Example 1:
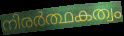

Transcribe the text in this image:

നിരർത്ഥകത്വം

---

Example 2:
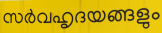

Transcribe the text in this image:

സർവഹൃദയങ്ങളും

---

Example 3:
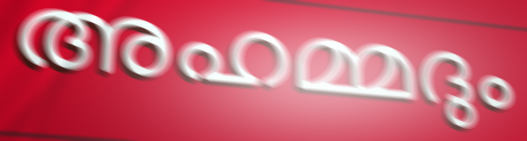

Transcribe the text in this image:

അഹമ്മദും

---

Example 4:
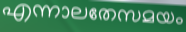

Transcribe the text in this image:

എന്നാലതേസമയം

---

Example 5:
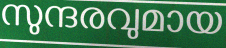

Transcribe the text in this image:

സുന്ദരവുമായ